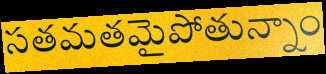
సతమతమైపోతున్నాం